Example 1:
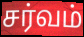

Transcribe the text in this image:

சர்வம்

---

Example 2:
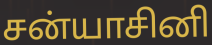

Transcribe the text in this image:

சன்யாசினி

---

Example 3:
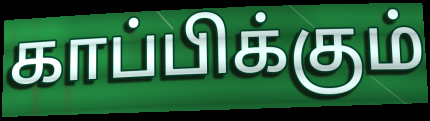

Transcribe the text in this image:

காப்பிக்கும்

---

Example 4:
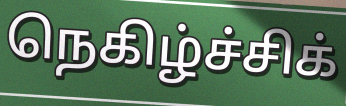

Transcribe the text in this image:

நெகிழ்ச்சிக்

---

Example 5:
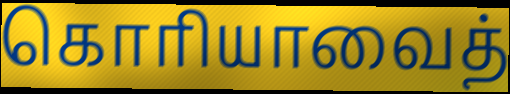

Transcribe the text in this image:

கொரியாவைத்